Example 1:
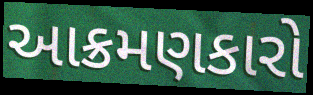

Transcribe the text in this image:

આક્રમણકારો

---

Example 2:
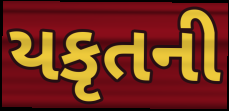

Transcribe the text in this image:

યકૃતની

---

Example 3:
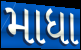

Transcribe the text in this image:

માધા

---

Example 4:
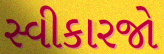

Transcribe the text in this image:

સ્વીકારજો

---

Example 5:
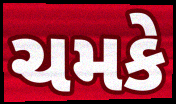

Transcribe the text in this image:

ચમકે